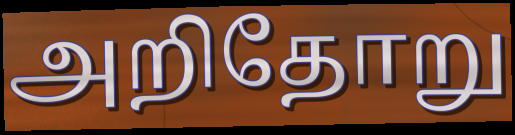
அறிதோறு